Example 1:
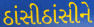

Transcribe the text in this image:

ઠાંસીઠાંસીને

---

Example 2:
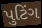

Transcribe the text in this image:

પુટિંગ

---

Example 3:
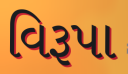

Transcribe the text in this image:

વિરૂપા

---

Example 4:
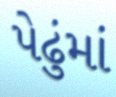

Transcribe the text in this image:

પેઢુંમાં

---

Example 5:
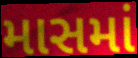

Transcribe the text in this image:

માસમાં